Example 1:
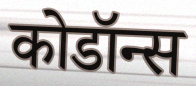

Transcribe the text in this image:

कोडॉन्स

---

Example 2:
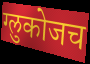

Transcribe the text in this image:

ग्लुकोजच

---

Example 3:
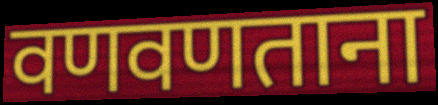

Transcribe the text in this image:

वणवणताना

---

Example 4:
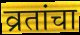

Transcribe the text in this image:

व्रतांचा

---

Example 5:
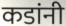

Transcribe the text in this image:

कडांनी